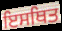
ਇਸਥਿਤ